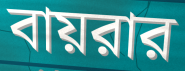
বায়রার